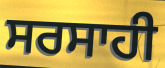
ਸਰਸਾਹੀ